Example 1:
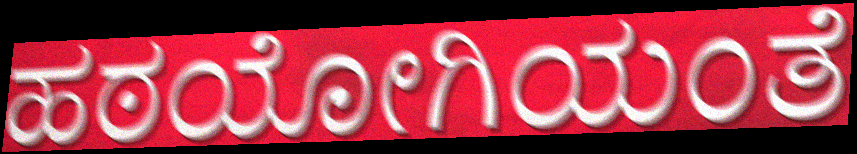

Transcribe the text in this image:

ಹಠಯೋಗಿಯಂತೆ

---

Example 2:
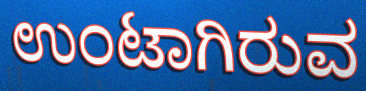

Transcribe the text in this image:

ಉಂಟಾಗಿರುವ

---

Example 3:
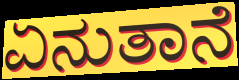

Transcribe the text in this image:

ಏನುತಾನೆ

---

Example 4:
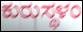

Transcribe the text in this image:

ಕುರುಸ್ಥಳಂ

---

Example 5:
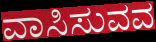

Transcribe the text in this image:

ವಾಸಿಸುವವ